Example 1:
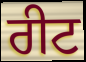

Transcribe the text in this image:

ਰੀਟ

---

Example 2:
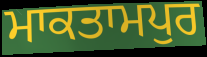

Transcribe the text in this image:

ਮਾਕਤਾਮਪੁਰ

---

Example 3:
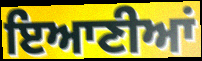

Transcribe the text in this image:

ਇਆਣੀਆਂ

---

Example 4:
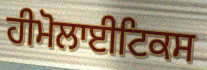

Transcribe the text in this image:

ਹੀਮੋਲਾਈਟਿਕਸ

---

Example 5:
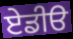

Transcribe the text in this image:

ਏਡੀੳ